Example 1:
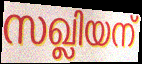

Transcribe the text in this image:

സഖ്ലിയന്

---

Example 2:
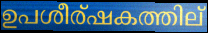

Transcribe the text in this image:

ഉപശീര്ഷകത്തില്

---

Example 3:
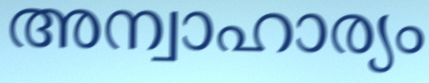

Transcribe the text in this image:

അന്വാഹാര്യം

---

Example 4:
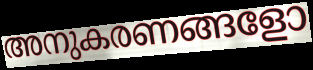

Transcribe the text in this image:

അനുകരണങ്ങളോ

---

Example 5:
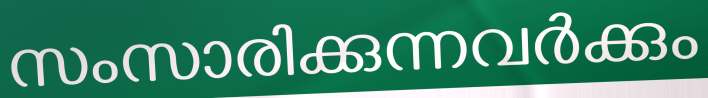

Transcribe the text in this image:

സംസാരിക്കുന്നവർക്കും